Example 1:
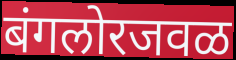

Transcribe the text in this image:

बंगलोरजवळ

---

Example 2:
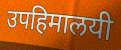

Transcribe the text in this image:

उपहिमालयी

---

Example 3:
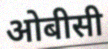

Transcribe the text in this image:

ओबीसी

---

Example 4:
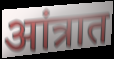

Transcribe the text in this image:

आंत्रात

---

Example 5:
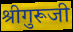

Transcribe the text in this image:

श्रीगुरूजी